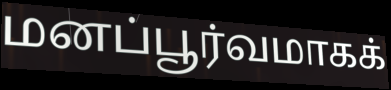
மனப்பூர்வமாகக்